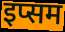
इप्सम